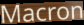
Macron